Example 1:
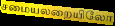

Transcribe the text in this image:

சமையலறையிலோ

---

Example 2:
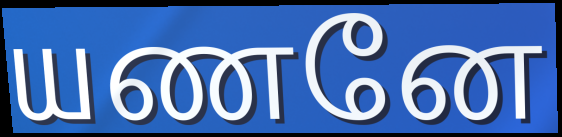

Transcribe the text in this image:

யணனே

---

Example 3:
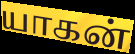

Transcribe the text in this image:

யாகன்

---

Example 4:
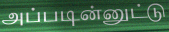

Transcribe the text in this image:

அப்படின்னுட்டு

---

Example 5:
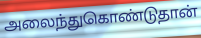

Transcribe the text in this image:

அலைந்துகொண்டுதான்